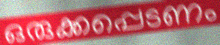
ഒരുക്കപ്പെടണം